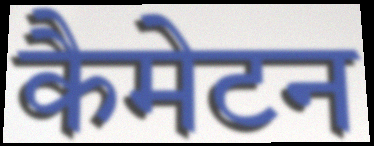
कैमेटन